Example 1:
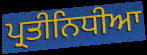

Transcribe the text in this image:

ਪ੍ਰਤੀਨਿਧੀਆ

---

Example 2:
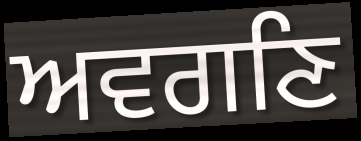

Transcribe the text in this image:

ਅਵਗਣਿ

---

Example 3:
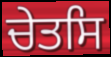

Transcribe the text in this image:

ਚੇਤਸਿ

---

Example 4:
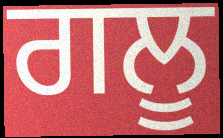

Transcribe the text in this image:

ਗਲੂ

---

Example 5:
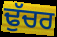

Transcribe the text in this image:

ਢੁੱਚਰ